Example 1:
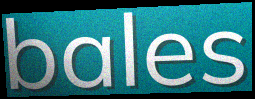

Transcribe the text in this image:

bales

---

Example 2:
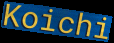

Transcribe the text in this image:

Koichi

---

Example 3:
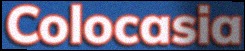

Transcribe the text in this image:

Colocasia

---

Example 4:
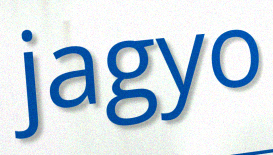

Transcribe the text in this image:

jagyo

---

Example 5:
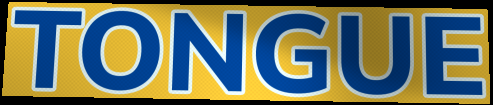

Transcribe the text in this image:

TONGUE